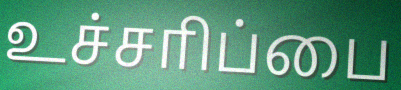
உச்சரிப்பை